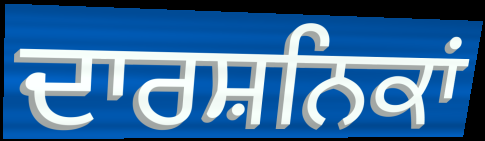
ਦਾਰਸ਼ਨਿਕਾਂ